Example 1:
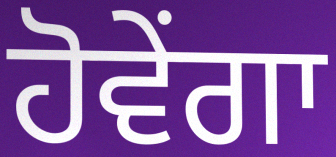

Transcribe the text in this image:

ਹੋਵੇਂਗਾ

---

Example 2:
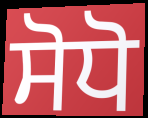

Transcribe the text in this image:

ਸੋਧੋ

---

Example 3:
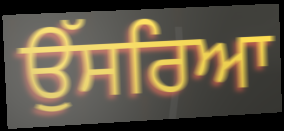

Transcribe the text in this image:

ਉੱਸਰਿਆ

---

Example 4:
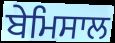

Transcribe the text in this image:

ਬੇਮਿਸਾਲ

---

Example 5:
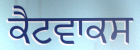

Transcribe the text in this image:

ਕੈਟਵਾਕਸ